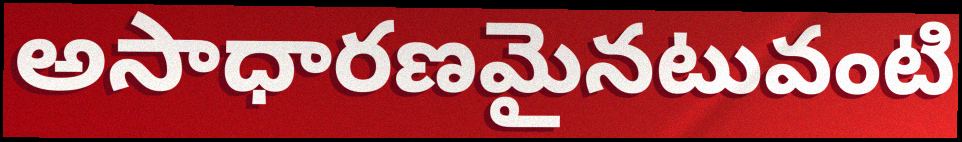
అసాధారణమైనటువంటి